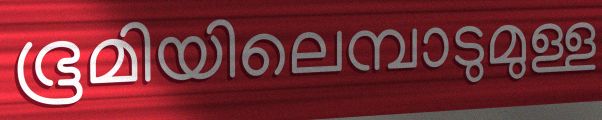
ഭൂമിയിലെമ്പാടുമുള്ള